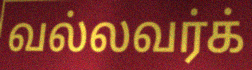
வல்லவர்க்